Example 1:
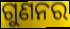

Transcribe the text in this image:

ଗୁଣନର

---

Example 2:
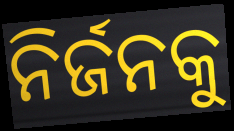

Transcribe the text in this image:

ନିର୍ଜନକୁ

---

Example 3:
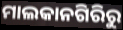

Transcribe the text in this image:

ମାଲକାନଗିରିରୁ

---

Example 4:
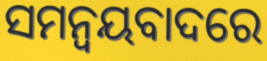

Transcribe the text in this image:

ସମନ୍ୱୟବାଦରେ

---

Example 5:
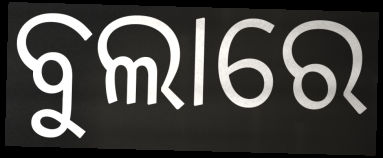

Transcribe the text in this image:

ବୁଲାରେ